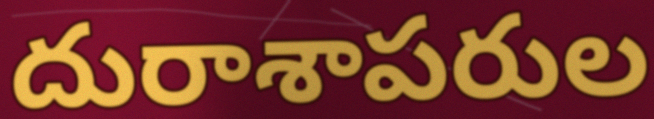
దురాశాపరుల